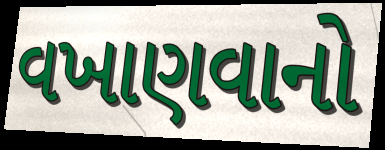
વખાણવાનો